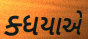
ક્ધયાએ